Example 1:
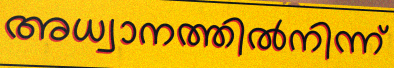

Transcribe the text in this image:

അധ്വാനത്തിൽനിന്ന്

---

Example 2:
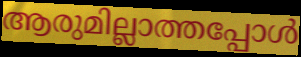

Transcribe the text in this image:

ആരുമില്ലാത്തപ്പോൾ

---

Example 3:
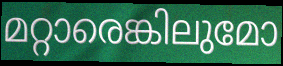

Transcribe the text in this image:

മറ്റാരെങ്കിലുമോ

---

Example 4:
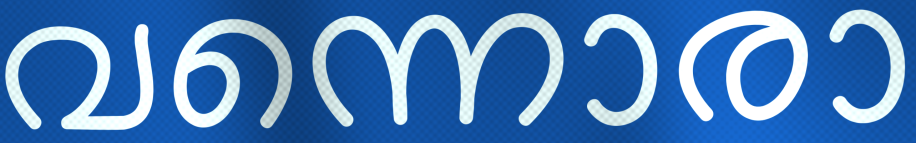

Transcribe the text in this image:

വന്നൊരാ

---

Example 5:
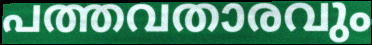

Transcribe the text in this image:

പത്തവതാരവും